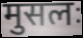
मुसलः